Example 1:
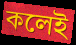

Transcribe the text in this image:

কলেই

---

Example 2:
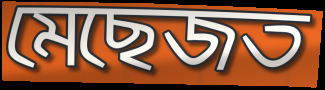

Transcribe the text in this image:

মেছেজত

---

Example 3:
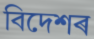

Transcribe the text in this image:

বিদেশৰ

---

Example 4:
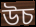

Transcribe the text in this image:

উচ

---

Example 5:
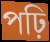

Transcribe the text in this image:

পঢ়ি